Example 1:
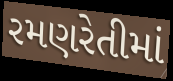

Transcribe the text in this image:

રમણરેતીમાં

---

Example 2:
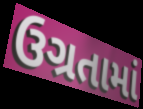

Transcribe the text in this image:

ઉગ્રતામાં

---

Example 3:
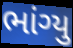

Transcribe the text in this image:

ભાંગ્યુ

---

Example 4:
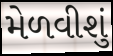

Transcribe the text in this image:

મેળવીશું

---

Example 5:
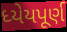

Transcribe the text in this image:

ધ્યેયપૂર્ણ